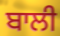
ਬਾਲੀ